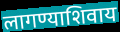
लागण्याशिवाय